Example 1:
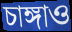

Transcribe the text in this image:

চাঙ্গাও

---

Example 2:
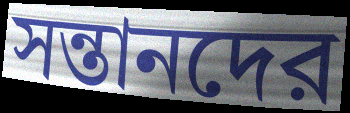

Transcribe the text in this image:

সন্তানদের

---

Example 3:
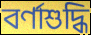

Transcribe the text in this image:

বর্ণাশুদ্ধি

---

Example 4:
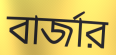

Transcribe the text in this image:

বার্জার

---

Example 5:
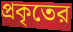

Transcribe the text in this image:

প্রকৃতের